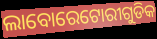
ଲାବୋରେଟୋରୀଗୁଡିକ